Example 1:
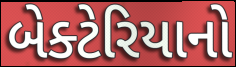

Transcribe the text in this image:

બેક્ટેરિયાનો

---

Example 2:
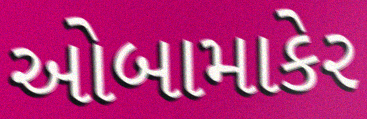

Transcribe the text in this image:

ઓબામાકેર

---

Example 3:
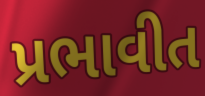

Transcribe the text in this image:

પ્રભાવીત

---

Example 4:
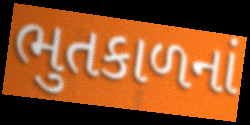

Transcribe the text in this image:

ભુતકાળનાં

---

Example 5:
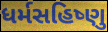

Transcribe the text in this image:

ધર્મસહિષ્ણુ